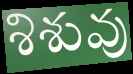
శిశువు